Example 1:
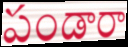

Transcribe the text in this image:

పండారా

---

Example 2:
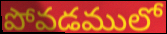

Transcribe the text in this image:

పోవడములో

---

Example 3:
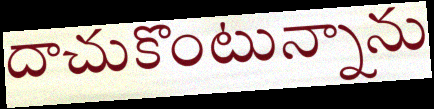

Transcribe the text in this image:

దాచుకొంటున్నాను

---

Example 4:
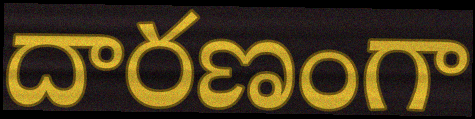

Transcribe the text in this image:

దారణంగా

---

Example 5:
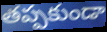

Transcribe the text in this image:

తప్పకుండా